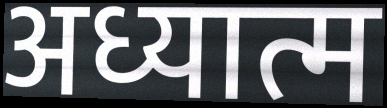
अध्यात्म